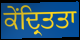
ਕੇਂਦ੍ਰਿਤਤਾ